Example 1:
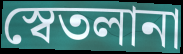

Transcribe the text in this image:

স্বেতলানা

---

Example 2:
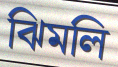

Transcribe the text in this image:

ঝিমলি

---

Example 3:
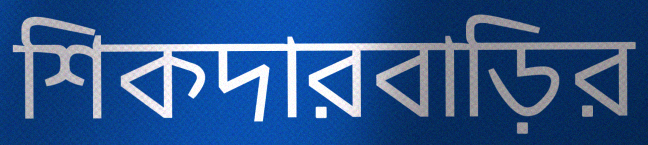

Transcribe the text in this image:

শিকদারবাড়ির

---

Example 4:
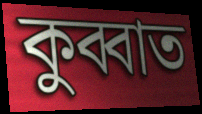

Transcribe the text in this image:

কুব্বাত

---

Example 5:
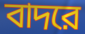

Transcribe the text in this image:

বাদরে